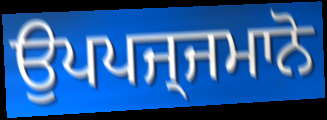
ਉਪਪਜ੍ਜਮਾਨੋ